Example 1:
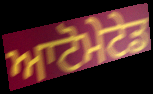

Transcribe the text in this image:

ਆਟੋਮੇਟੇਡ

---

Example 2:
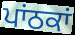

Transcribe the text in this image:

ਪਾਂਠਕਾਂ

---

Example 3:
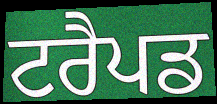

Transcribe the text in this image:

ਟਰੈਪਡ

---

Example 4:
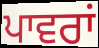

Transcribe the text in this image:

ਪਾਵਰਾਂ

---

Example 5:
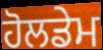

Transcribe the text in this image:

ਹੋਲਡੇਮ